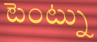
టెంట్ను